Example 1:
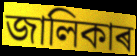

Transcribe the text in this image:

জালিকাৰ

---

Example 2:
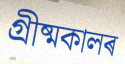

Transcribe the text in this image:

গ্ৰীষ্মকালৰ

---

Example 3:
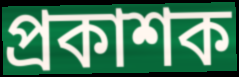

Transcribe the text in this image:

প্ৰকাশক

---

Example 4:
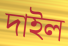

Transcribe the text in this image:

দাইল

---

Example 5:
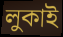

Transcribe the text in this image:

লুকাই